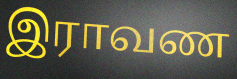
இராவண